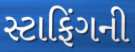
સ્ટાફિંગની